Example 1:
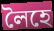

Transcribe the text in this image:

লৈহে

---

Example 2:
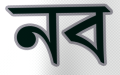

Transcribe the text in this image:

নব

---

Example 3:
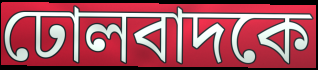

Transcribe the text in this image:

ঢোলবাদকে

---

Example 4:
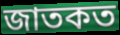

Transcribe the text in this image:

জাতকত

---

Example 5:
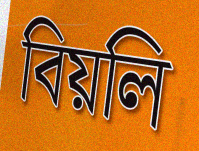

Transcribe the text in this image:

বিয়লি